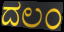
ದಲಂ